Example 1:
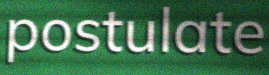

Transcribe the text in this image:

postulate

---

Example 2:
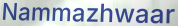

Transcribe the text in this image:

Nammazhwaar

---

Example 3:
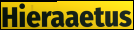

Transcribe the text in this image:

Hieraaetus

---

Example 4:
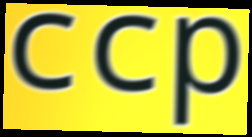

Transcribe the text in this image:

ccp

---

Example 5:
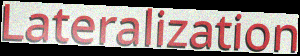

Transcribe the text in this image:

Lateralization